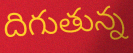
దిగుతున్న